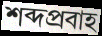
শব্দপ্রবাহ